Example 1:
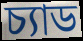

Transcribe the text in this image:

চ্যাড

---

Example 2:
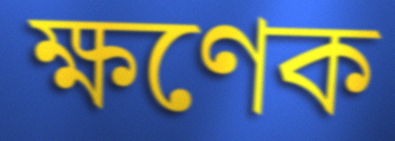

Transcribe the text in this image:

ক্ষণেক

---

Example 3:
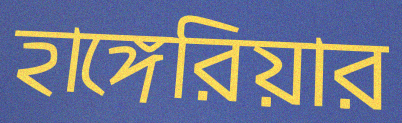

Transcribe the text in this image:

হাঙ্গেরিয়ার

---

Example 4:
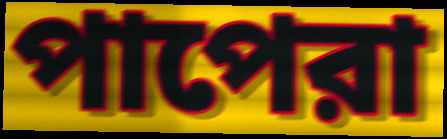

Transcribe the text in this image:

পাপেরা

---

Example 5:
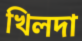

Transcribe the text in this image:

খিলদা